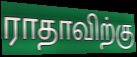
ராதாவிற்கு